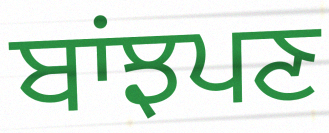
ਬਾਂਝਪਣ